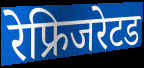
रेफ्रिजरेटड